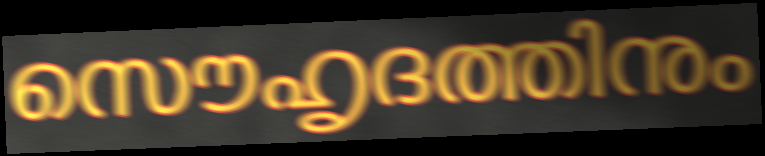
സൌഹൃദത്തിനും